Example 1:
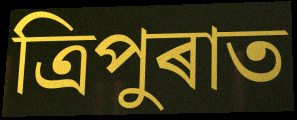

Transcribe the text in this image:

ত্ৰিপুৰাত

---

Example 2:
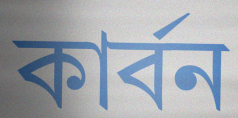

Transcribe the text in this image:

কাৰ্বন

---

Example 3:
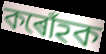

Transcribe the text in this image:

কৰোঁহক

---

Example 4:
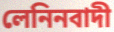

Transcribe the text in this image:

লেনিনবাদী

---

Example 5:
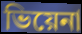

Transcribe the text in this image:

ভিয়েনা